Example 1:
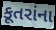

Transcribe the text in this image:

કૂતરાંના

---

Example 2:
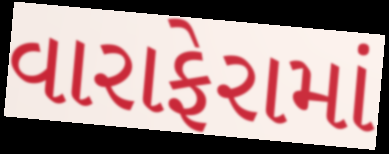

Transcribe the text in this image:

વારાફેરામાં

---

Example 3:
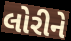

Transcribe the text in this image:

લોરીને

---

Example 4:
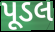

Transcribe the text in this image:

પૂડલ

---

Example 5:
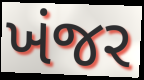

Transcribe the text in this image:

ખંજર